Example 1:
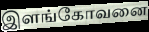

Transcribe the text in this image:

இளங்கோவனை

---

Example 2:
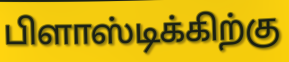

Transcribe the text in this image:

பிளாஸ்டிக்கிற்கு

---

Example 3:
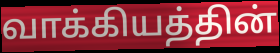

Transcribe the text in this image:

வாக்கியத்தின்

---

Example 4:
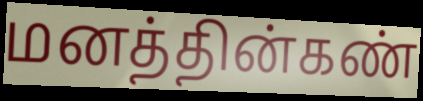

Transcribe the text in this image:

மனத்தின்கண்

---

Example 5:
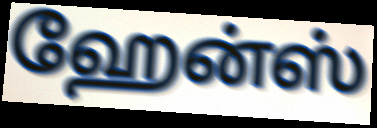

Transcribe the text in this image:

ஹேன்ஸ்